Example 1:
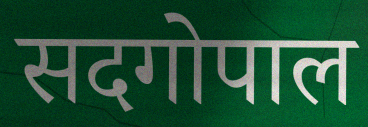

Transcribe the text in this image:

सदगोपाल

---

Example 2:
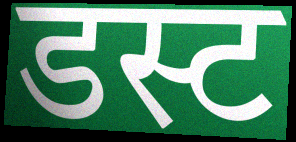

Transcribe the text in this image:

डस्ट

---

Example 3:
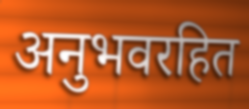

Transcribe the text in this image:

अनुभवरहित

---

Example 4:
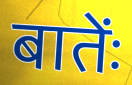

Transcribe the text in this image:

बातेंः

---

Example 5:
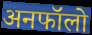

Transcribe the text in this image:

अनफॉलो